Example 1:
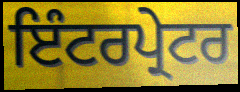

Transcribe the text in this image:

ਇੰਟਰਪ੍ਰੇਟਰ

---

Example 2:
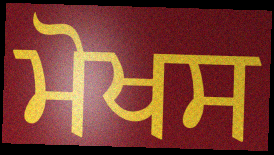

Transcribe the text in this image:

ਮੋਖਸ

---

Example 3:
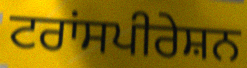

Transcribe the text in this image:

ਟਰਾਂਸਪੀਰੇਸ਼ਨ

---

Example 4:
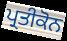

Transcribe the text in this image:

ਪ੍ਰਤੀਕੋਨ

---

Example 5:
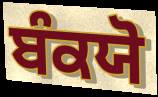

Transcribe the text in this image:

ਬੰਕਯੋ